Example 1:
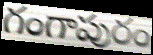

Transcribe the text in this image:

గంగాపురం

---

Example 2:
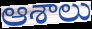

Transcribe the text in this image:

ఆశాలు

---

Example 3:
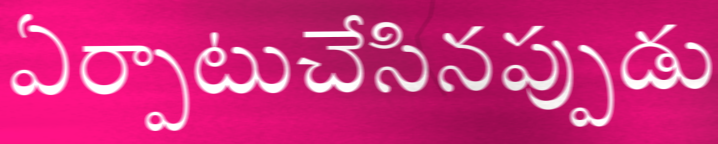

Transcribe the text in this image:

ఏర్పాటుచేసినప్పుడు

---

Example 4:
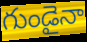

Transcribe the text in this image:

గుండైనా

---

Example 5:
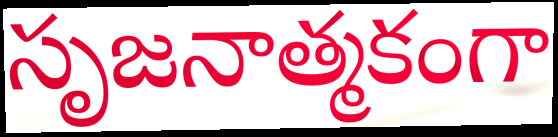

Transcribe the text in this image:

సృజనాత్మకంగా